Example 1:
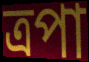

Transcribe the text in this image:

ত্রপা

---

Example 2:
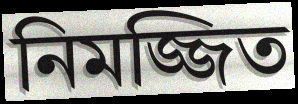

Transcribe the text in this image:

নিমজ্জিত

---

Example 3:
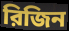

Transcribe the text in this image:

রিজিন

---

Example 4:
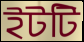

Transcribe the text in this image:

ইটটি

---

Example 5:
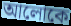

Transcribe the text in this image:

আলোকে